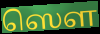
ஸௌ